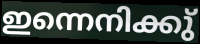
ഇന്നെനിക്കു്